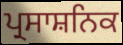
ਪ੍ਰਸਾਸ਼ਨਿਕ